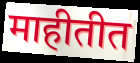
माहीतीत